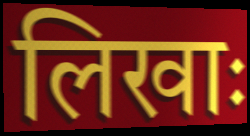
लिखाः